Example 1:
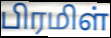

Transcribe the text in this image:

பிரமிள்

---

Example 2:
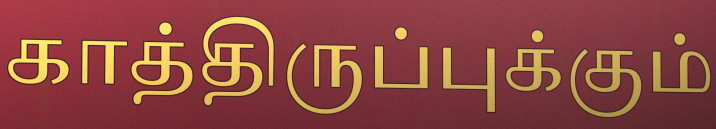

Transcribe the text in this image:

காத்திருப்புக்கும்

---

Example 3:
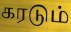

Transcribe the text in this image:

கரடும்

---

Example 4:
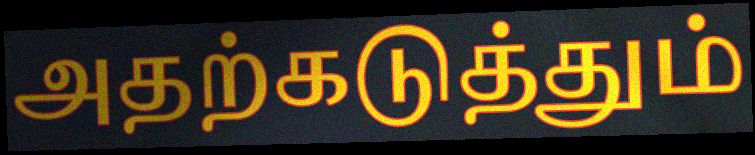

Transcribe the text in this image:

அதற்கடுத்தும்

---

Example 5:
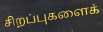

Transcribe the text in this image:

சிறப்புகளைக்